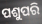
ପଶୁପରି